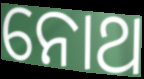
ନୋଥ